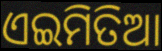
ଏଇମିତିଆ